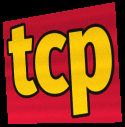
tcp